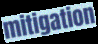
mitigation